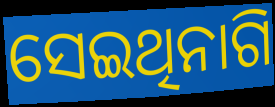
ସେଇଥିନାଗି